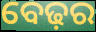
ବେଢ଼ର